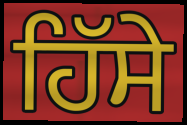
ਹਿੱਸੇ